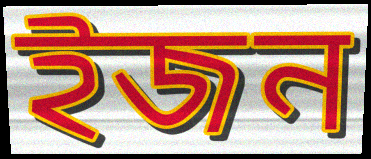
ইজন